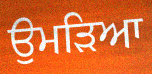
ਉਮੜਿਆ